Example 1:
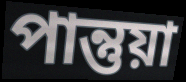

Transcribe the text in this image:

পান্তুয়া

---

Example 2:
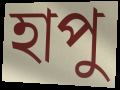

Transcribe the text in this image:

হাপু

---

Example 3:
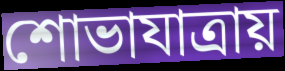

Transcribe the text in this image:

শোভাযাত্রায়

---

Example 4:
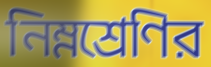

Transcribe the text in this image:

নিম্নশ্রেণির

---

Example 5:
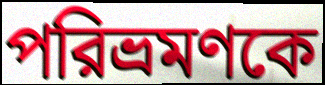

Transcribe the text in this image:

পরিভ্রমণকে